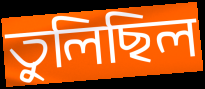
তুলিছিল